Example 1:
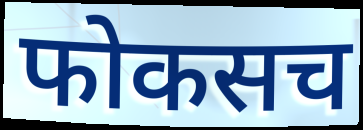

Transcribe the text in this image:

फोकसच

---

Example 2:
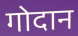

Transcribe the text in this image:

गोदान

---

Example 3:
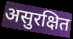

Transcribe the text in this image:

असुरक्षित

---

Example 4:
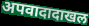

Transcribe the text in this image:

अपवादादाखल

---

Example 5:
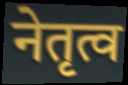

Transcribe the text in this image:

नेतृत्‍व